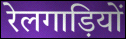
रेलगाड़ियों